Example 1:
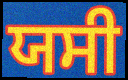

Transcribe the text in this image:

ਯਸੀ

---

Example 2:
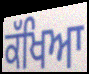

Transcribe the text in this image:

ਕੱਖਿਆ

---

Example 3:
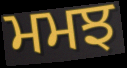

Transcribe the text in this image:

ਮਮਝ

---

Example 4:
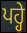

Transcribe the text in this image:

ਪਹ੍ਹੇ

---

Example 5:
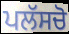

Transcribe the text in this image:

ਪਲੱਸਚੋ